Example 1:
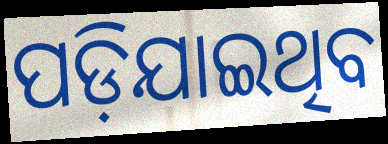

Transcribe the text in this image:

ପଡ଼ିଯାଇଥିବ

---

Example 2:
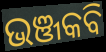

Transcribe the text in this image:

ଭଞ୍ଜକବି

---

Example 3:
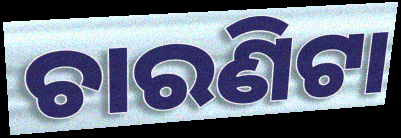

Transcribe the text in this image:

ଚାରଣିଟା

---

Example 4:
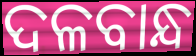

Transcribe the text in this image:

ଦଳବାନ୍ଧ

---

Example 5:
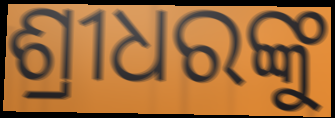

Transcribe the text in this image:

ଶ୍ରୀଧରଙ୍କୁ